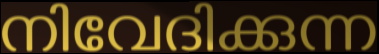
നിവേദിക്കുന്ന